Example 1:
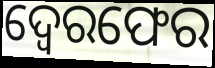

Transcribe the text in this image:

ଦ୍ବେରଫେର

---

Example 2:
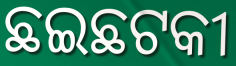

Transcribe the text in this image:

ଛଇଛଟକୀ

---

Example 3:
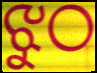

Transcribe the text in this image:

ଝୁଠ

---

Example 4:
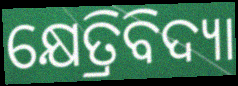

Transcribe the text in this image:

କ୍ଷେତ୍ରିବିଦ୍ୟା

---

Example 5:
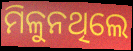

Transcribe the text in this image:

ମିଳୁନଥିଲେ